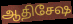
ஆதிசேஷ